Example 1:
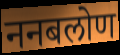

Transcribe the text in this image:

ननबलोण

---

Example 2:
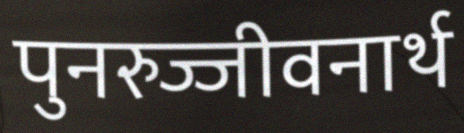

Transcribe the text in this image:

पुनरुज्जीवनार्थ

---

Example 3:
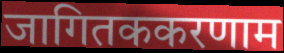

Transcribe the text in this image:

जागितककरणाम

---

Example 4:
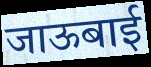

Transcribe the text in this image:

जाऊबाई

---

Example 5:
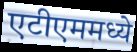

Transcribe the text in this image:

एटीएममध्ये